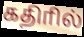
கதிரில்